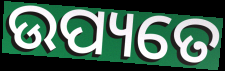
ଉପ୍ୟତେ